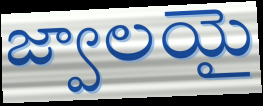
జ్వాలయై